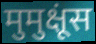
मुमुक्षूंस